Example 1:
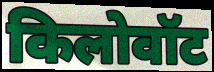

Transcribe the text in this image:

किलोवॉट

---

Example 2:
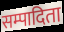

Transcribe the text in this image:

सम्पादिता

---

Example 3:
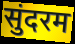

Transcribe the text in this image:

सुंदरम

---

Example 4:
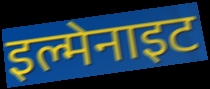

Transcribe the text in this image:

इल्मेनाइट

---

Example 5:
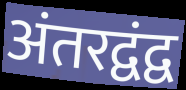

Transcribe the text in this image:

अंतरद्वंद्व